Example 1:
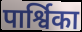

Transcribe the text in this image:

पार्श्विका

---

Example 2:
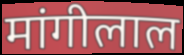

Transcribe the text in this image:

मांगीलाल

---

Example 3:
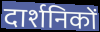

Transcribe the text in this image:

दार्शनिकों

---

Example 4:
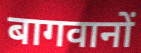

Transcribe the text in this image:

बागवानों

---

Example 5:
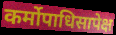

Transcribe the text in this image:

कर्मोपाधिसापेक्ष